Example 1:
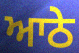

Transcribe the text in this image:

ਆਠੇ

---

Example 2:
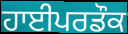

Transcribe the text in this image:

ਹਾਈਪਰਡੌਕ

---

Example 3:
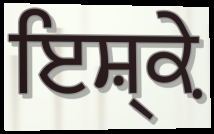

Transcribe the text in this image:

ਇਸ਼੍ਕ਼ੇ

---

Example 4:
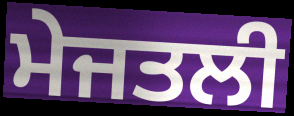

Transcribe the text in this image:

ਮੇਜਤਲੀ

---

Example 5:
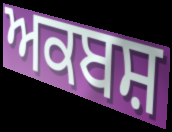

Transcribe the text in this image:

ਅਕਬਸ਼